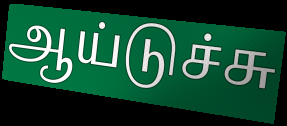
ஆய்டுச்சு